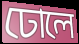
ঢোলে